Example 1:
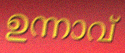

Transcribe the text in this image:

ഉന്നാവ്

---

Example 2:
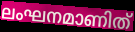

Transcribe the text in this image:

ലംഘനമാണിത്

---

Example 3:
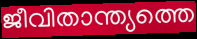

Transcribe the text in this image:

ജീവിതാന്ത്യത്തെ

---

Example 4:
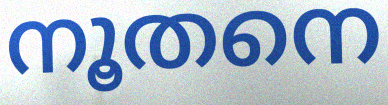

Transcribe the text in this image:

നൂതനെ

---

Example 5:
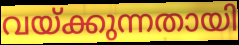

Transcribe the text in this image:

വയ്ക്കുന്നതായി